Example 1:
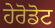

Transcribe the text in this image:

ਹੇਰੋਡੋਟ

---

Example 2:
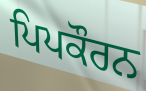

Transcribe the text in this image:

ਪਿਪਕੌਰਨ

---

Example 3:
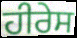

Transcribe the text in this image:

ਹੀਰੇਸ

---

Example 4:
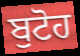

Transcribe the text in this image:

ਬੁਟੋਹ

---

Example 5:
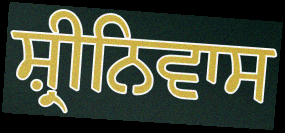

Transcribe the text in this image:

ਸ਼੍ਰੀਨਿਵਾਸ